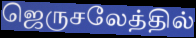
ஜெருசலேத்தில்